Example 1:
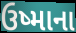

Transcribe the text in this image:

ઉષ્માના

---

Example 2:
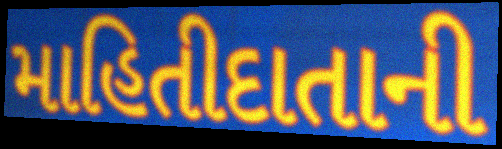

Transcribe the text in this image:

માહિતીદાતાની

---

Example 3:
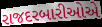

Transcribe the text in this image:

રાજદરબારીઓએ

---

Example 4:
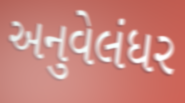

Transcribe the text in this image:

અનુવેલંધર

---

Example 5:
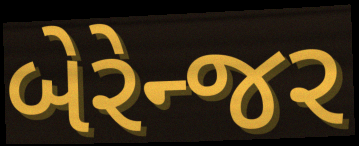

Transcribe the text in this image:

બેરેન્જર